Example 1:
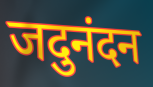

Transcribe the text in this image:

जदुनंदन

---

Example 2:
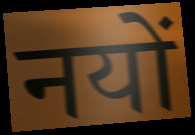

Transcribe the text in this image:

नयों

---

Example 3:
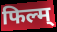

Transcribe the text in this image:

फिल्म्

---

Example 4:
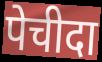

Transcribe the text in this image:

पेचीदा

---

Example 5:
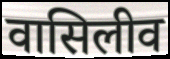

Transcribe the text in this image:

वासिलीव